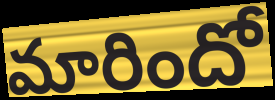
మారిందో